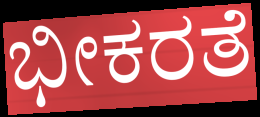
ಭೀಕರತೆ